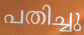
പതിച്ചു